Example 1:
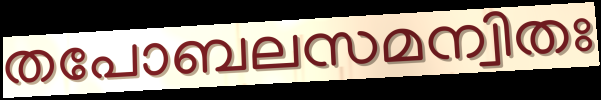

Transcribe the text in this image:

തപോബലസമന്വിതഃ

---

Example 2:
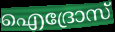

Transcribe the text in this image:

ഐദ്രോസ്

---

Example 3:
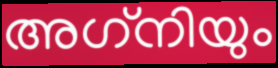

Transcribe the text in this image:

അഗ്‌നിയും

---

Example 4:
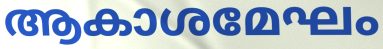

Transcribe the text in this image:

ആകാശമേഘം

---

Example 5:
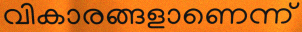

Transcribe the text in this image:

വികാരങ്ങളാണെന്ന്